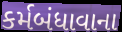
કર્મબંધાવાના